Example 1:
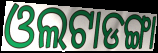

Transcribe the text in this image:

ଓଲଟାଡଙ୍ଗା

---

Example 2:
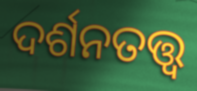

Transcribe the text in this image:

ଦର୍ଶନତତ୍ତ୍ଵ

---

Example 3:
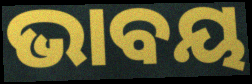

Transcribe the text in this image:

ଭାବୟ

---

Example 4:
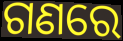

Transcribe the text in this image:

ଗଣରେ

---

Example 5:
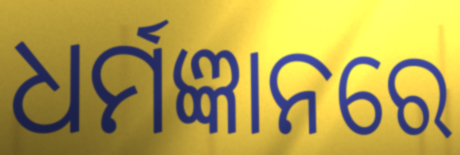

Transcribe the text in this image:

ଧର୍ମଜ୍ଞାନରେ